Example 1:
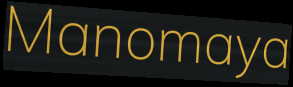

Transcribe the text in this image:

Manomaya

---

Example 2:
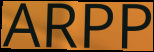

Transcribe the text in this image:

ARPP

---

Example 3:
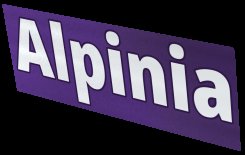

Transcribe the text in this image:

Alpinia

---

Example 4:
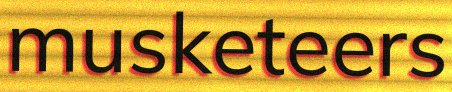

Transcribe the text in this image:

musketeers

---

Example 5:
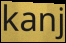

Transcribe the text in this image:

kanj